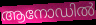
ആനോഡിൽ